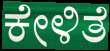
ಕೇಳಿತೆ